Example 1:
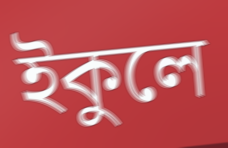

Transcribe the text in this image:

ইকুলে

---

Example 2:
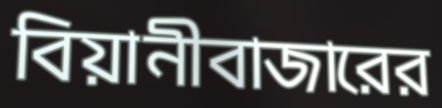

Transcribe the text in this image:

বিয়ানীবাজারের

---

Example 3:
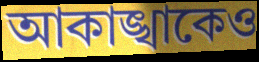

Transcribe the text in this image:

আকাঙ্খাকেও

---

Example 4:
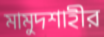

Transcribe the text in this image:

মামুদশাহীর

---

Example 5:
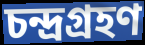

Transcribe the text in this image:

চন্দ্রগ্রহণ